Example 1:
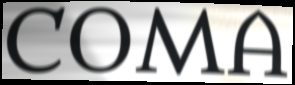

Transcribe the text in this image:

COMA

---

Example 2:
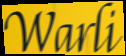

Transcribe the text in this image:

Warli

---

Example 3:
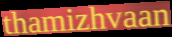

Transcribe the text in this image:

thamizhvaan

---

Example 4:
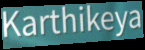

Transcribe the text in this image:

Karthikeya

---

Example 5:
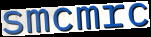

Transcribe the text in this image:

smcmrc